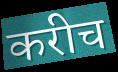
करीच